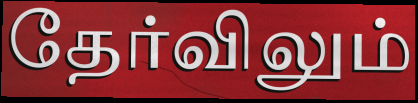
தேர்விலும்